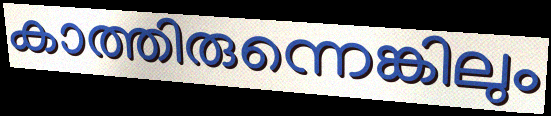
കാത്തിരുന്നെങ്കിലും